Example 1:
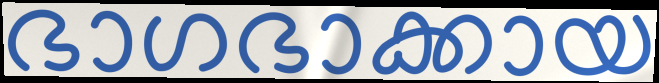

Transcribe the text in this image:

ഭാഗഭാക്കായ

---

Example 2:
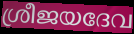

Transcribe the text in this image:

ശ്രീജയദേവ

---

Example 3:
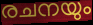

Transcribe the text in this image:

രചനയും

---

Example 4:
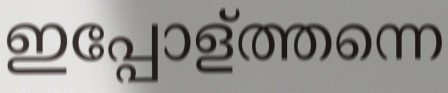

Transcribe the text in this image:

ഇപ്പോള്ത്തന്നെ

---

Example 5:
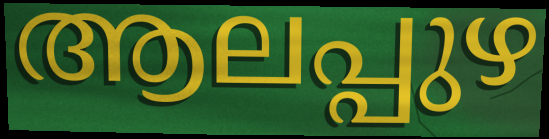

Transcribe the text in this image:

ആലപ്പുഴ